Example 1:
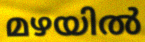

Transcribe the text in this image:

മഴയിൽ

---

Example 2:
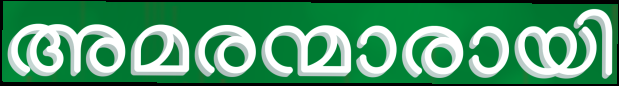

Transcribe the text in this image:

അമരന്മാരായി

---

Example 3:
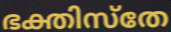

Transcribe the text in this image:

ഭക്തിസ്തേ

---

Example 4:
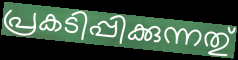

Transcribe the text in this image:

പ്രകടിപ്പിക്കുന്നതു്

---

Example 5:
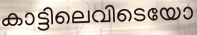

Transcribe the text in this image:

കാട്ടിലെവിടെയോ